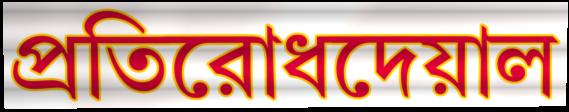
প্রতিরোধদেয়াল